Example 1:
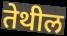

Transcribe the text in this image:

तेथील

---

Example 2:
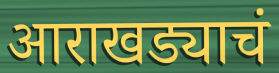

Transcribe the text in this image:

आराखड्याचं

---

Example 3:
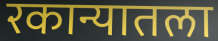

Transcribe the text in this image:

रकान्यातला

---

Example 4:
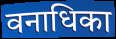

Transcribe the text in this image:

वनाधिका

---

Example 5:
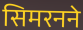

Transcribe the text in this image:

सिमरनने